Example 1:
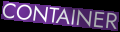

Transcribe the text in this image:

CONTAINER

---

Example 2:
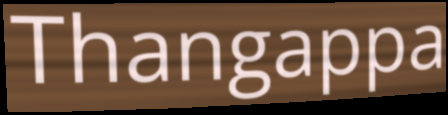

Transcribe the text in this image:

Thangappa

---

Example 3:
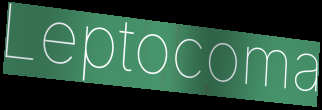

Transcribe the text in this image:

Leptocoma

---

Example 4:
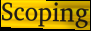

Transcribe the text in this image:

Scoping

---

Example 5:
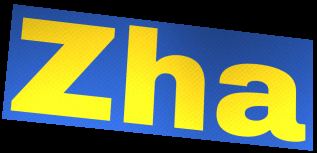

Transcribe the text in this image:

Zha